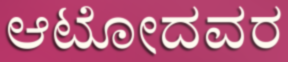
ಆಟೋದವರ